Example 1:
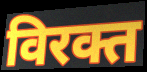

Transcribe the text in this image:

विरक्त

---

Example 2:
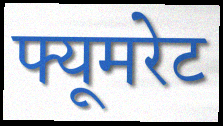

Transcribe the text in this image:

फ्यूमरेट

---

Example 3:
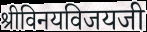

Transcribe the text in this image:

श्रीविनयविजयजी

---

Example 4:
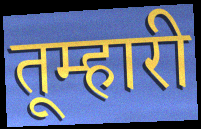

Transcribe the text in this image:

तूम्हारी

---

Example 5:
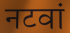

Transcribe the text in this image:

नटवां